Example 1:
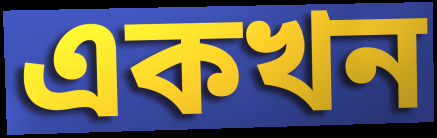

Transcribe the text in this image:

একখন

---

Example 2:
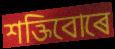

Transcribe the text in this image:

শক্তিবোৰে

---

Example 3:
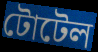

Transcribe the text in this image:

টোটেল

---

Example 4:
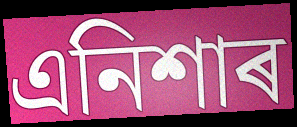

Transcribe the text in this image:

এনিশাৰ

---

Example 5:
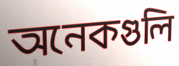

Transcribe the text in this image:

অনেকগুলি